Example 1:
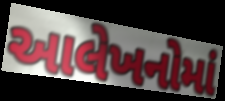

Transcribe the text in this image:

આલેખનોમાં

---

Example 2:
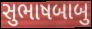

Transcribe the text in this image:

સુભાષબાબુ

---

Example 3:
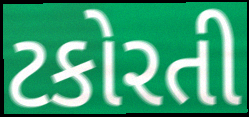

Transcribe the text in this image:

ટકોરતી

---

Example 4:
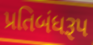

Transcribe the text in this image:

પ્રતિબંધરૂપ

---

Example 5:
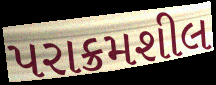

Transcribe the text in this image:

પરાક્રમશીલ